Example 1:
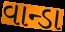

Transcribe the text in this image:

વાન્ડા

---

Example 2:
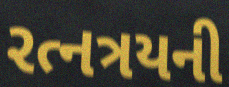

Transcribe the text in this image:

રત્નત્રયની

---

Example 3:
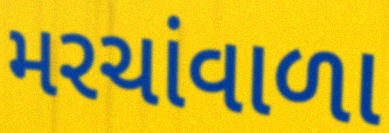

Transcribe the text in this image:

મરચાંવાળા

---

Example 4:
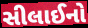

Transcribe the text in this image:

સીલાઈનો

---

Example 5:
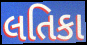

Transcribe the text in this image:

લતિકા